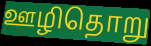
ஊழிதொறு